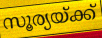
സൂര്യയ്ക്ക്